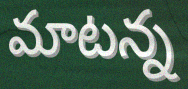
మాటన్న